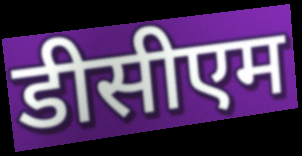
डीसीएम